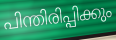
പിന്തിരിപ്പിക്കും